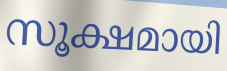
സൂക്ഷമായി